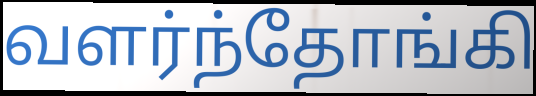
வளர்ந்தோங்கி